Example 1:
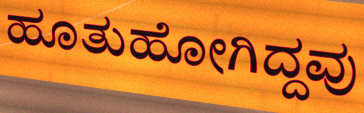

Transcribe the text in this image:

ಹೂತುಹೋಗಿದ್ದವು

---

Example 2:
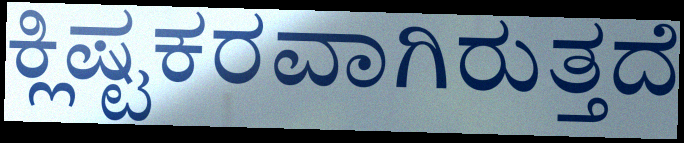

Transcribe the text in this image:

ಕ್ಲಿಷ್ಟಕರವಾಗಿರುತ್ತದೆ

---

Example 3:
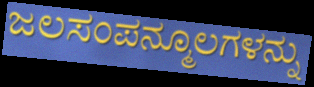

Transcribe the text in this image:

ಜಲಸಂಪನ್ಮೂಲಗಳನ್ನು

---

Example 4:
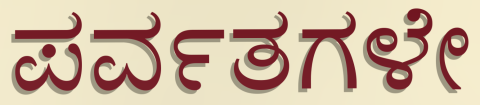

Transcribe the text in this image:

ಪರ್ವತಗಳೇ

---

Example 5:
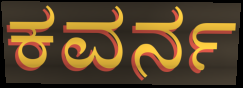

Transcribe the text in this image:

ಕವರ್ನ